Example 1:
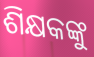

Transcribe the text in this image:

ଶିକ୍ଷକଙ୍କୁ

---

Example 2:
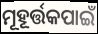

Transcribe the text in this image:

ମୂହୂର୍ତ୍ତକପାଇଁ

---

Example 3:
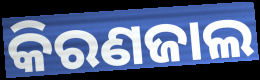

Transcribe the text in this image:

କିରଣଜାଲ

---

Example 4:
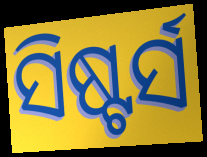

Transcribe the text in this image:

ସିଷ୍ଟର୍ସ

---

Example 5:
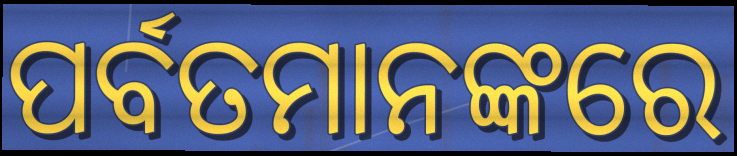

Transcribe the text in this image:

ପର୍ବତମାନଙ୍କରେ